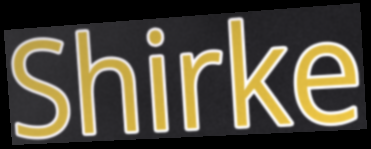
Shirke